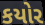
કયોર